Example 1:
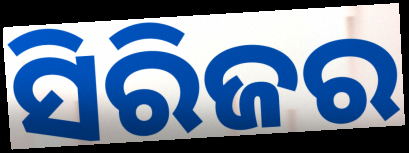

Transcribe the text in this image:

ସିରିଜର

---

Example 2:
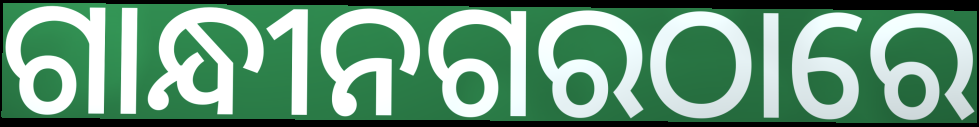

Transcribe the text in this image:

ଗାନ୍ଧୀନଗରଠାରେ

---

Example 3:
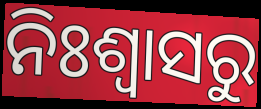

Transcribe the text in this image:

ନିଃଶ୍ଵାସରୁ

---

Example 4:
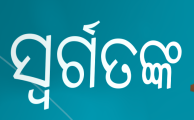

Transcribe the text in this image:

ସ୍ୱର୍ଗତଙ୍କ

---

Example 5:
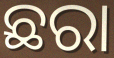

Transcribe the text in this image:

ଛରା